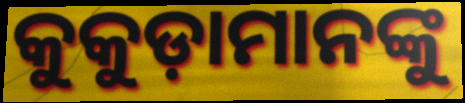
କୁକୁଡ଼ାମାନଙ୍କୁ